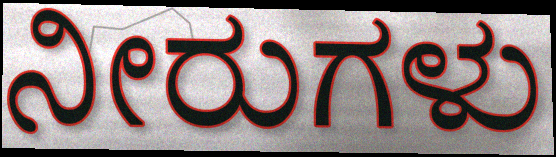
ನೀರುಗಳು